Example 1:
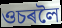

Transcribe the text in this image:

ওচৰলৈ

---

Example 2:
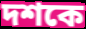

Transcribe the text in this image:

দশকে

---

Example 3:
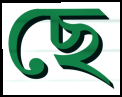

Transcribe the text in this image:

ছে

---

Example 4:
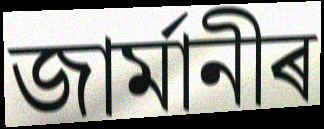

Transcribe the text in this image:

জাৰ্মানীৰ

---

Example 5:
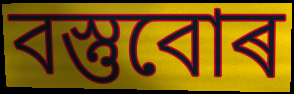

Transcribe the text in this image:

বস্তুবোৰ